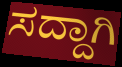
ಸದ್ದಾಗಿ